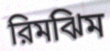
রিমঝিম